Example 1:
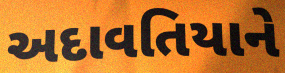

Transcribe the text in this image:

અદાવતિયાને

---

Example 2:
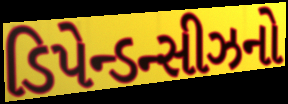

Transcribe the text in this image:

ડિપેન્ડન્સીઝનો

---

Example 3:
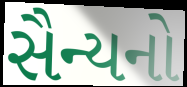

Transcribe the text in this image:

સૈન્યનો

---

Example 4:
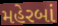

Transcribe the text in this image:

મહેરબાં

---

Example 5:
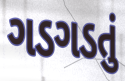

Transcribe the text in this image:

ગડગડતું